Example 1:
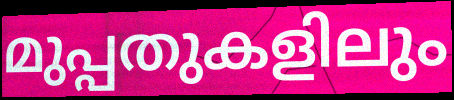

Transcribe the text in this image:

മുപ്പതുകളിലും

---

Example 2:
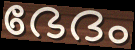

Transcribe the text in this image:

ഭേദം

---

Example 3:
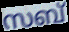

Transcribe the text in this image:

സബ്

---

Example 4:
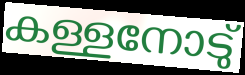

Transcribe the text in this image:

കള്ളനോടു്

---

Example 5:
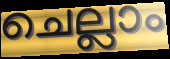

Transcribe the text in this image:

ചെല്ലാം